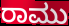
ರಾಮು